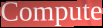
Compute